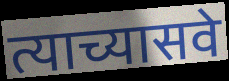
त्याच्यासवे